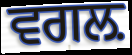
ਵਗਲ਼